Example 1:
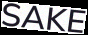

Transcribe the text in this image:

SAKE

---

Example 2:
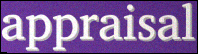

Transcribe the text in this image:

appraisal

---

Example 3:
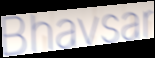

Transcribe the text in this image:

Bhavsar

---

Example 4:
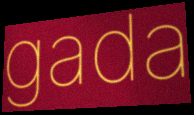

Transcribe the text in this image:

gada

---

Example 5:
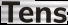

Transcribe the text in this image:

Tens